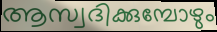
ആസ്വദിക്കുമ്പോഴും